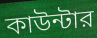
কাউন্টার